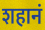
शहानं